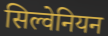
सिल्वेनियन